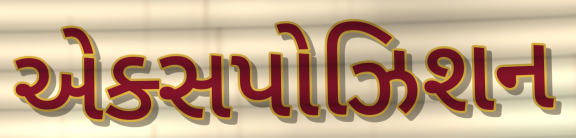
એક્સપોઝિશન